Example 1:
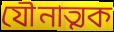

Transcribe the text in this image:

যৌনাত্মক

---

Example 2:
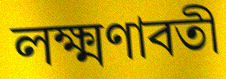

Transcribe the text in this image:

লক্ষ্মণাবতী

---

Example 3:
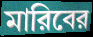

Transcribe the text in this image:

মারিবের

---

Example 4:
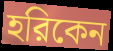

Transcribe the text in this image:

হরিকেন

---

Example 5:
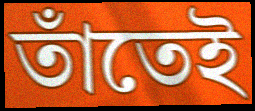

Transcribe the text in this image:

তাঁতেই